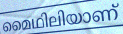
മൈഥിലിയാണ്